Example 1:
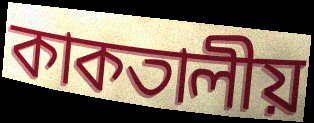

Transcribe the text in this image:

কাকতালীয়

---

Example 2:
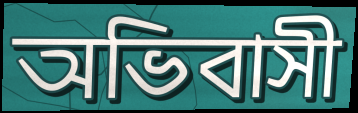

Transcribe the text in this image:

অভিবাসী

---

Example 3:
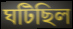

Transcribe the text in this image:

ঘটিছিল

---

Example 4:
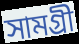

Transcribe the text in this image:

সামগ্ৰী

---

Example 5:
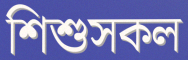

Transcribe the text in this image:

শিশুসকল